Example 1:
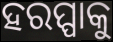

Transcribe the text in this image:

ହରପ୍ପାକୁ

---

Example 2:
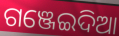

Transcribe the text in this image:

ଗଞ୍ଜେଇଦିଆ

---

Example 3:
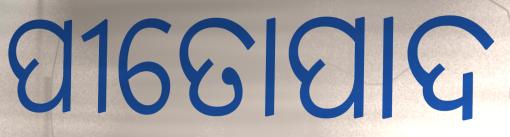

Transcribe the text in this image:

ପୀତୋପାଦ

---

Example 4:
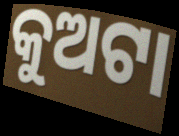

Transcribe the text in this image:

କୁଅଟା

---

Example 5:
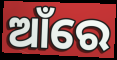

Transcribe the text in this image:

ଆଁରେ